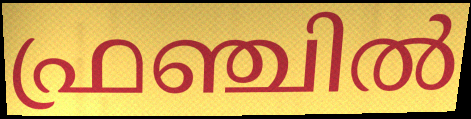
ഫ്രഞ്ചിൽ